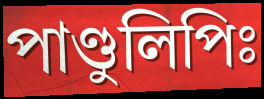
পাণ্ডুলিপিঃ